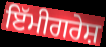
ਇੱਮੀਗਰੇਸ਼